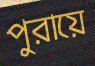
পুরায়ে